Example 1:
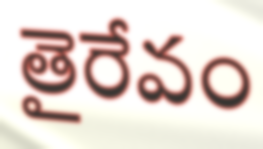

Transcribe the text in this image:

తైరేవం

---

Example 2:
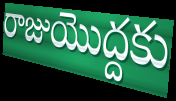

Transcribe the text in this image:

రాజుయొద్దకు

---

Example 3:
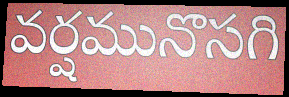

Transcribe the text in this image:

వర్షమునొసగి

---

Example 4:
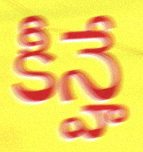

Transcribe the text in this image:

కీన్హే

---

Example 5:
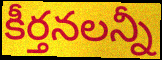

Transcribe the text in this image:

కీర్తనలన్నీ